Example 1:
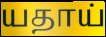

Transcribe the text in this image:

யதாய்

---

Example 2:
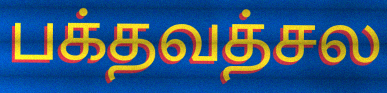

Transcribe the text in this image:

பக்தவத்சல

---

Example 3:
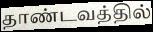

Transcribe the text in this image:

தாண்டவத்தில்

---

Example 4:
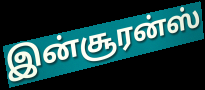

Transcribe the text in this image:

இன்சூரன்ஸ்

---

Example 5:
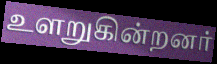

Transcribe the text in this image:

உளறுகின்றனர்